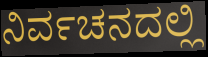
ನಿರ್ವಚನದಲ್ಲಿ